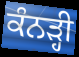
ਕੰਨੜ੍ਹੀ